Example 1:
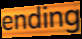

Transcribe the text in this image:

ending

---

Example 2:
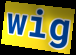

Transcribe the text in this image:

wig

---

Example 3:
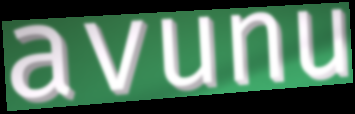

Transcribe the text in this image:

avunu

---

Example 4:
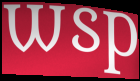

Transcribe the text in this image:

wsp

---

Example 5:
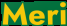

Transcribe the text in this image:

Meri